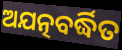
ଅଯତ୍ନବର୍ଦ୍ଧିତ